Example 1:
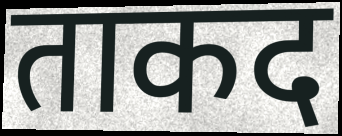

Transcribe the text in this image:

ताकद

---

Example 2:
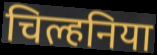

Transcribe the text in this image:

चिल्हनिया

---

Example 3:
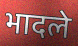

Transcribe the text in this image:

भादले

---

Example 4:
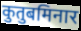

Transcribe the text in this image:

कुतुबमिनार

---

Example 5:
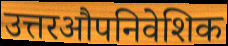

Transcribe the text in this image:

उत्तरऔपनिवेशिक